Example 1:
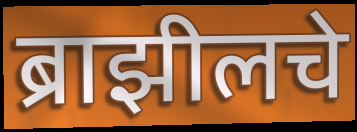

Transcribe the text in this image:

ब्राझीलचे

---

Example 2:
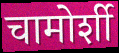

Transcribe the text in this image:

चामोर्शी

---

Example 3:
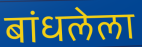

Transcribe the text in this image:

बांधलेला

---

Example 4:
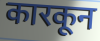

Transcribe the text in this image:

कारकून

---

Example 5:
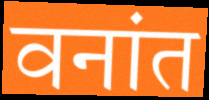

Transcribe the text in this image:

वनांत